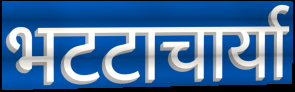
भटटाचार्या